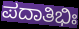
ಪದಾತಿಭಿಃ